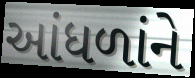
આંધળાંને